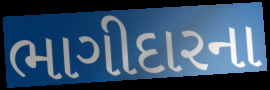
ભાગીદારના